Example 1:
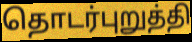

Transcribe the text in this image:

தொடர்புறுத்தி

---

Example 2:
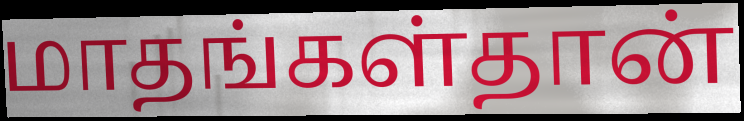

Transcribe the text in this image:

மாதங்கள்தான்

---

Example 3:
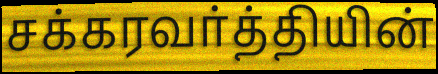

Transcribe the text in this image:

சக்கரவர்த்தியின்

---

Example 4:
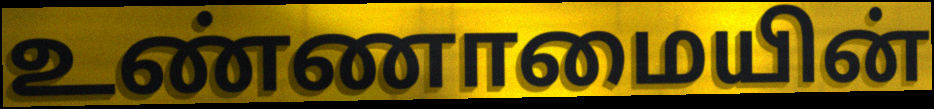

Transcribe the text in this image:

உண்ணாமையின்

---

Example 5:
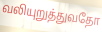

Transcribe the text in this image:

வலியுறுத்துவதோ